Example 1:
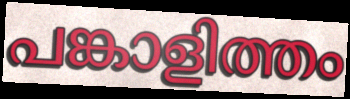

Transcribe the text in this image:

പങ്കാളിത്തം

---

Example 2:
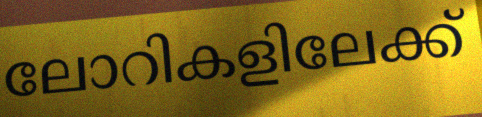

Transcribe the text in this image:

ലോറികളിലേക്ക്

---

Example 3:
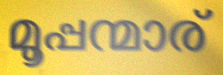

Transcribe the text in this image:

മൂപ്പന്മാര്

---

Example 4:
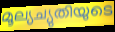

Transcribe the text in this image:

മൂല്യച്യുതിയുടെ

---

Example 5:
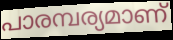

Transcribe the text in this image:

പാരമ്പര്യമാണ്